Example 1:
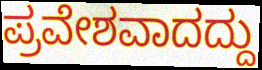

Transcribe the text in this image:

ಪ್ರವೇಶವಾದದ್ದು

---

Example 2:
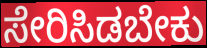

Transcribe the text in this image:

ಸೇರಿಸಿಡಬೇಕು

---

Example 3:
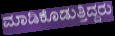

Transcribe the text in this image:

ಮಾಡಿಕೊಡುತ್ತಿದ್ದರು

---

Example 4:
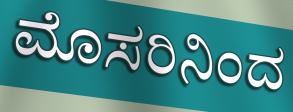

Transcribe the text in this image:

ಮೊಸರಿನಿಂದ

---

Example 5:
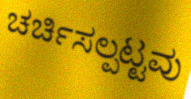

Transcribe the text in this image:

ಚರ್ಚಿಸಲ್ಪಟ್ಟವು